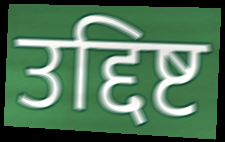
उद्दिष्ट